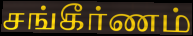
சங்கீர்ணம்